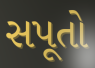
સપૂતો